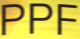
PPF